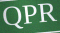
QPR